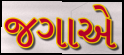
જગાએ